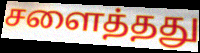
சளைத்தது